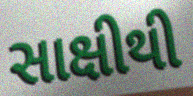
સાક્ષીથી